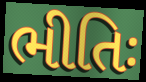
ભીતિઃ